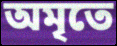
অমৃতে